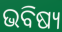
ଭବିଷ୍ଯ